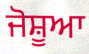
ਜੋਸ਼ੂਆ